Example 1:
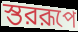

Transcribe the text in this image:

স্তররূপে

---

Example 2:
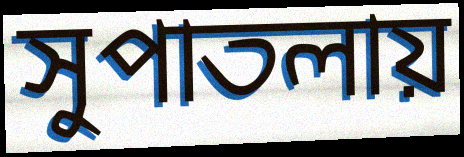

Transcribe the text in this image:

সুপাতলায়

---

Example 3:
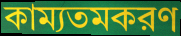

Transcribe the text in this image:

কাম্যতমকরণ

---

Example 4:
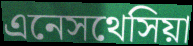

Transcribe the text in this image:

এনেসথেসিয়া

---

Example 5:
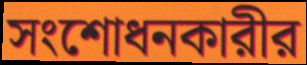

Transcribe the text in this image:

সংশোধনকারীর